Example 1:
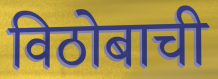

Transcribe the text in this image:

विठोबाची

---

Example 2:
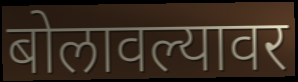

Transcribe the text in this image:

बोलावल्यावर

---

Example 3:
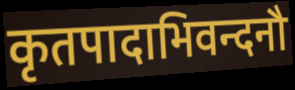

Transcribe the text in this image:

कृतपादाभिवन्दनौ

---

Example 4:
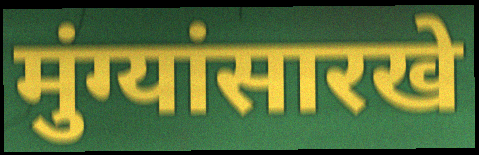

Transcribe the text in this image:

मुंग्यांसारखे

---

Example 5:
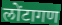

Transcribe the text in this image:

लोंटागण